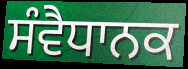
ਸੰਵੈਧਾਨਕ